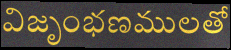
విజృంభణములతో